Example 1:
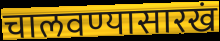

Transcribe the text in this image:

चालवण्यासारखं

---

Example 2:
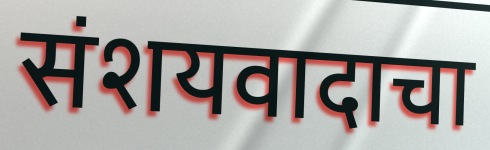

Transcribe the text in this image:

संशयवादाचा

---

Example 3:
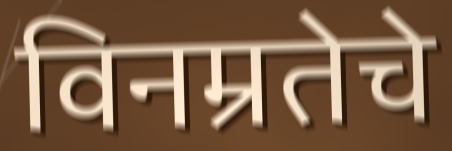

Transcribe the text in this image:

विनम्रतेचे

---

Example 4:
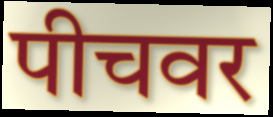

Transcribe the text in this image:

पीचवर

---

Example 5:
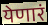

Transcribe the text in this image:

येणारं